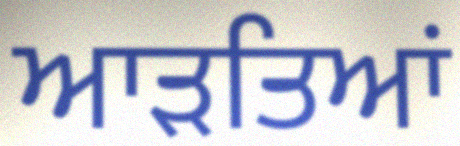
ਆੜਤਿਆਂ